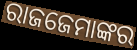
ରାଜଜେମାଙ୍କର